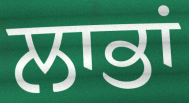
ਲਾਭਾਂ